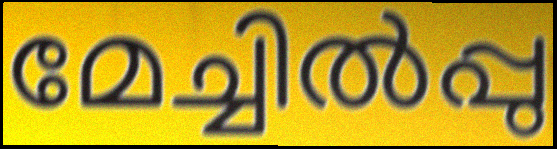
മേച്ചിൽപ്പു